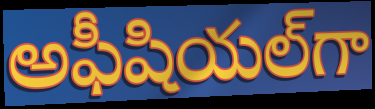
అఫీషియల్‌గా